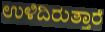
ಉಳಿದಿರುತ್ತಾರೆ